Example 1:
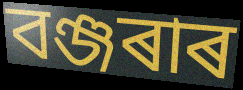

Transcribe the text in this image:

বঞ্জৰাৰ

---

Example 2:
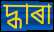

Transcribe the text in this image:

দ্ধাৰা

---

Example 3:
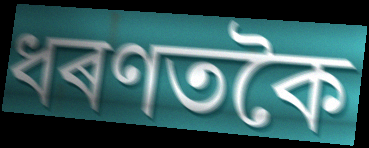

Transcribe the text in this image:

ধৰণতকৈ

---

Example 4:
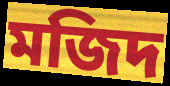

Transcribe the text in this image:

মজিদ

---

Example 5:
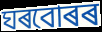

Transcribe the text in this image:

ঘৰবোৰৰ